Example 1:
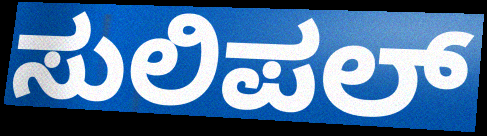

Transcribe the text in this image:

ಸುಲಿಪಲ್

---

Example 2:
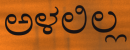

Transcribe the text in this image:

ಅಳಲಿಲ್ಲ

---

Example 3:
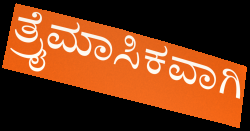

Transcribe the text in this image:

ತ್ರೈಮಾಸಿಕವಾಗಿ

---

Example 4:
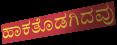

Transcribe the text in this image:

ಹಾಕತೊಡಗಿದವು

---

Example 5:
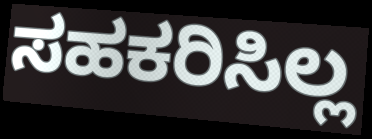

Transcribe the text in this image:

ಸಹಕರಿಸಿಲ್ಲ